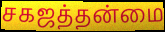
சகஜத்தன்மை